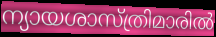
ന്യായശാസ്ത്രിമാരിൽ